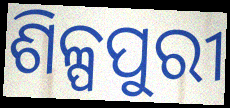
ଶିଳ୍ପପୁରୀ